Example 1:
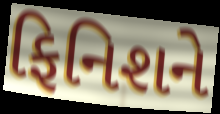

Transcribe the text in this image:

ફિનિશને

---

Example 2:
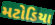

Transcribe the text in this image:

મટોડિયા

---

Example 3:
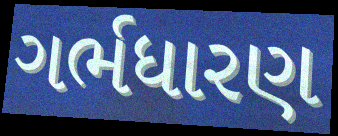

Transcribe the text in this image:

ગર્ભધારણ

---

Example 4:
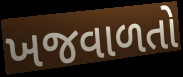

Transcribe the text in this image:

ખજવાળતો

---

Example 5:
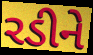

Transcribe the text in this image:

રડીને